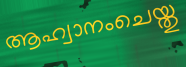
ആഹ്വാനംചെയ്തു